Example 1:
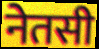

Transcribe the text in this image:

नेतसी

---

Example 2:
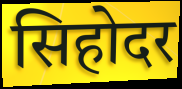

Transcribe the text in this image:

सिहोदर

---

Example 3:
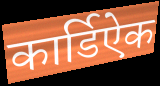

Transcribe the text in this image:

कार्डिऐक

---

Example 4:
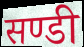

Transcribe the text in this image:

सण्डी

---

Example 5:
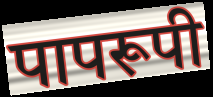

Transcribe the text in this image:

पापरूपी